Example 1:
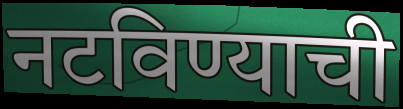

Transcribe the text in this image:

नटविण्याची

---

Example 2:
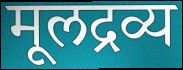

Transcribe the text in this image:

मूलद्रव्य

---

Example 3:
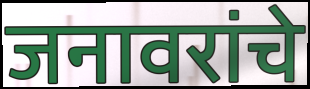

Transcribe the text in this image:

जनावरांचे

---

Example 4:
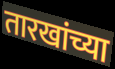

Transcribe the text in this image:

तारखांच्या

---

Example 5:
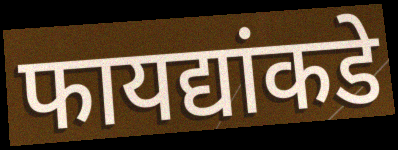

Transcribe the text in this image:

फायद्यांकडे